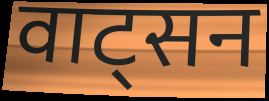
वाट्सन